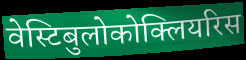
वेस्टिबुलोकोक्लियरिस